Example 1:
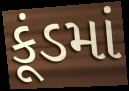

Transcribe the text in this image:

કૂંડમાં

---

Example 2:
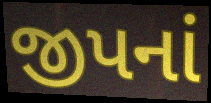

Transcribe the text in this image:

જીપનાં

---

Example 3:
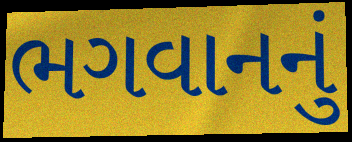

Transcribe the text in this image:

ભગવાનનું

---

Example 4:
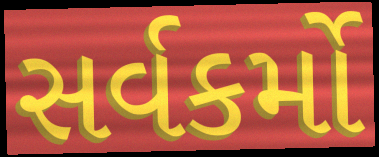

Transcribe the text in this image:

સર્વકર્મો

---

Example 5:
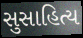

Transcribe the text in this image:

સુસાહિત્ય